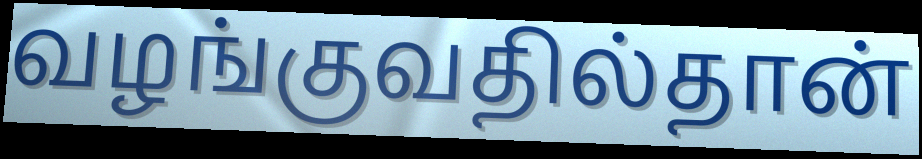
வழங்குவதில்தான்